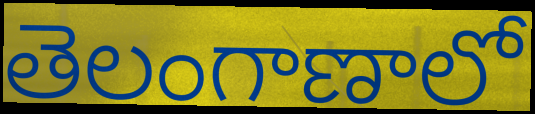
తెలంగాణాలో